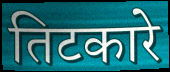
तिटकारे